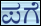
ಪಗೆ